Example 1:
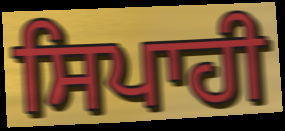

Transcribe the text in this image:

ਸਿਪਾਹੀ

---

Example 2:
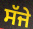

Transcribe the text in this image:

ਸੱਜੇ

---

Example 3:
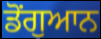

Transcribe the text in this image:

ਡੋਂਗੁਆਨ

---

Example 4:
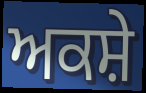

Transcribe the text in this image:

ਅਕਸ਼ੇ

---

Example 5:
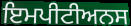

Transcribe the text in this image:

ਇਮਪੀਟੀਅਨਸ